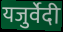
यजुर्वेदी